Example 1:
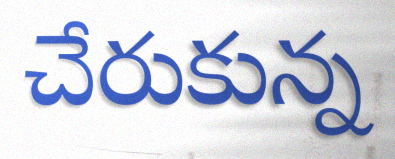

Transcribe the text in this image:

చేరుకున్న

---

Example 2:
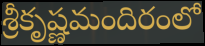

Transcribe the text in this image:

శ్రీకృష్ణమందిరంలో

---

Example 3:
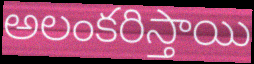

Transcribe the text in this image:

అలంకరిస్తాయి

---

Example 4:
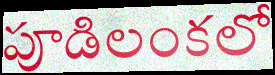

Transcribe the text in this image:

పూడిలంకలో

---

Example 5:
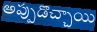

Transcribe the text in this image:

అప్పుడొచ్చాయి